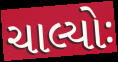
ચાલ્યોઃ